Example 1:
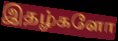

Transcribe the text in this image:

இதழ்களோ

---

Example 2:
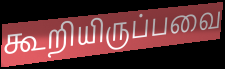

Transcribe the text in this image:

கூறியிருப்பவை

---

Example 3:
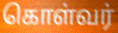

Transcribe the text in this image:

கொள்வர்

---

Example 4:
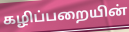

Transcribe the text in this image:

கழிப்பறையின்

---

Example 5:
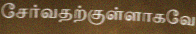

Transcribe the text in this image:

சேர்வதற்குள்ளாகவே